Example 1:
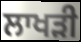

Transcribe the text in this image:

ਲਾਖੜੀ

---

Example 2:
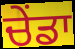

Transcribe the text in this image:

ਚੇਂਡਾ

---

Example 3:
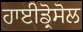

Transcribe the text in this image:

ਹਾਈਡ੍ਰੋਸੋਲ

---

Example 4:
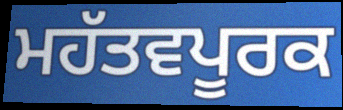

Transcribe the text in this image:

ਮਹੱਤਵਪੂਰਕ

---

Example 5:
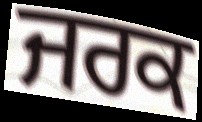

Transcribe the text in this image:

ਜਰਕ